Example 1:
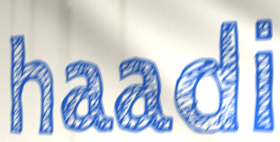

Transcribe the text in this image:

haadi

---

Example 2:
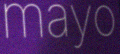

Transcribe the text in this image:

mayo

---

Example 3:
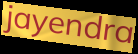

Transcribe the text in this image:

jayendra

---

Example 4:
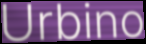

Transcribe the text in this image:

Urbino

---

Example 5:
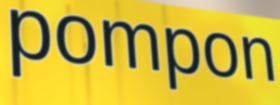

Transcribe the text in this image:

pompon